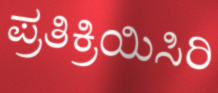
ಪ್ರತಿಕ್ರಿಯಿಸಿರಿ